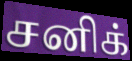
சனிக்